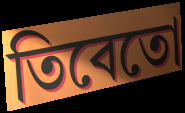
তিবেতো